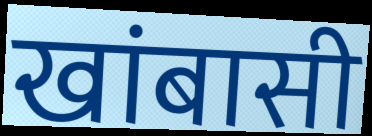
खांबासी